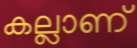
കല്ലാണ്